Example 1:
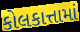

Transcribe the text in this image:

કોલકાત્તામાં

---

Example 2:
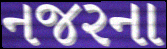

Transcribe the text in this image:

નજરના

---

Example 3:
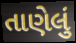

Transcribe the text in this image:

તાણેલું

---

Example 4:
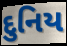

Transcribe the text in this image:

દુનિય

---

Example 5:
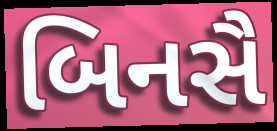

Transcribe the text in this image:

બિનસૈ